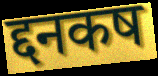
द्दनकष